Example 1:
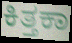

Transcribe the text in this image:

ಕಿತ್ತಕಾ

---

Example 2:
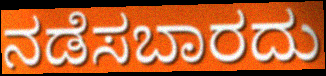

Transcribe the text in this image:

ನಡೆಸಬಾರದು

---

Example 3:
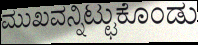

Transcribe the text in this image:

ಮುಖವನ್ನಿಟ್ಟುಕೊಂಡು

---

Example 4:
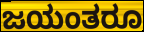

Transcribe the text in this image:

ಜಯಂತರೂ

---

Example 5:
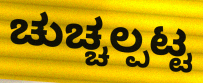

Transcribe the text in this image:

ಚುಚ್ಚಲ್ಪಟ್ಟ